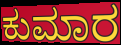
ಕುಮಾರ